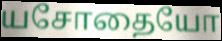
யசோதையோ